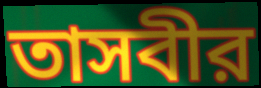
তাসবীর